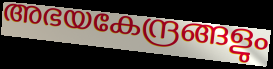
അഭയകേന്ദ്രങ്ങളും